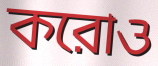
করোও